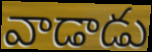
వాడాడు